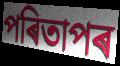
পৰিতাপৰ